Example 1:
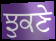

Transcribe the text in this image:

ਝੁਕਣੇ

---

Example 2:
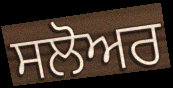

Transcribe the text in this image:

ਸਲੋਅਰ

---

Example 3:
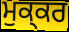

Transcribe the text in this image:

ਮੁਕ੍ਕਰ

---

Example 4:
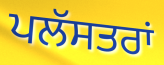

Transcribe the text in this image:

ਪਲੱਸਤਰਾਂ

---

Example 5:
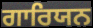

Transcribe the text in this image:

ਗਾਰਿਯਨ